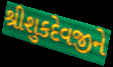
શ્રીશુકદેવજીને